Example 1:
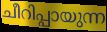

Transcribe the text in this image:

ചീറിപ്പായുന്ന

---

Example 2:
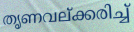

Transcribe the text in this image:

തൃണവല്ക്കരിച്ച്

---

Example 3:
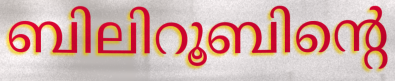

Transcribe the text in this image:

ബിലിറൂബിന്റെ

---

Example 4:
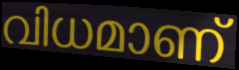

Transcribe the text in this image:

വിധമാണ്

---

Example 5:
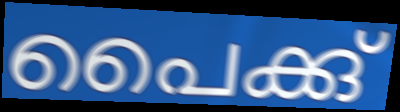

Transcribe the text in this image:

പൈക്കു്